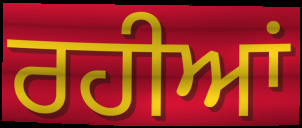
ਰਹੀਆਂ